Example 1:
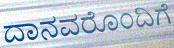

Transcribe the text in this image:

ದಾನವರೊಂದಿಗೆ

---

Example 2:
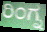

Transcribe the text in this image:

ರಿಂಗ್ನ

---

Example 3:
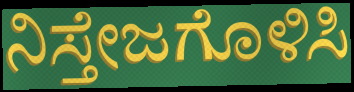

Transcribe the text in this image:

ನಿಸ್ತೇಜಗೊಳಿಸಿ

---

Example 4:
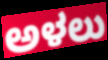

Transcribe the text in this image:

ಅಳಲು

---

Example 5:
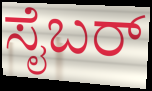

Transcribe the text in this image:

ಸೈಬರ್